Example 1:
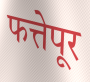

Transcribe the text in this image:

फत्तेपूर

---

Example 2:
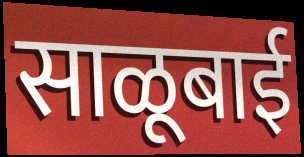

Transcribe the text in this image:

साळूबाई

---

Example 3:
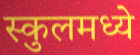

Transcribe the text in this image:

स्कुलमध्ये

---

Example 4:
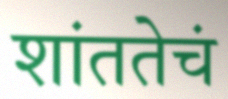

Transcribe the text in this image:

शांततेचं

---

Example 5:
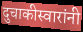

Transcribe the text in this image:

दुचाकीस्वारांनी